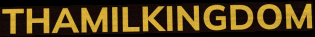
THAMILKINGDOM